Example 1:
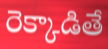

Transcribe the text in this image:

రెక్కాడితే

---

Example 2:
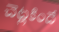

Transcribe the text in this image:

చెట్లకిందే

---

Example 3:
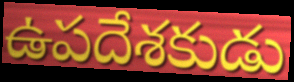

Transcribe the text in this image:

ఉపదేశకుడు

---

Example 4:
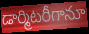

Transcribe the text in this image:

డార్మిటరీగానూ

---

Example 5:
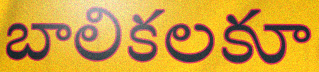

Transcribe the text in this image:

బాలికలకూ